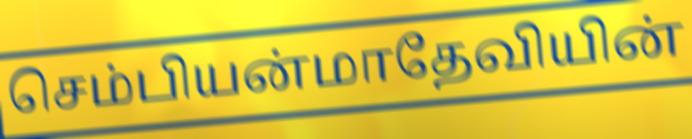
செம்பியன்மாதேவியின்